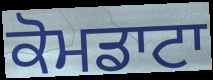
ਕੋਮਡਾਟਾ